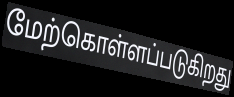
மேற்கொள்ளப்படுகிறது